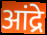
आंद्रे